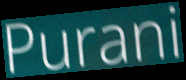
Purani